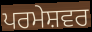
ਪਰਮੇਸ਼ਵਰ